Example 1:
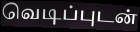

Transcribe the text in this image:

வெடிப்புடன்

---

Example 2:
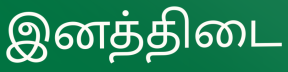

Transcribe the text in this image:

இனத்திடை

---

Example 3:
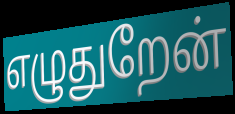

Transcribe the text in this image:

எழுதுறேன்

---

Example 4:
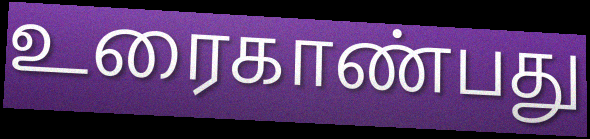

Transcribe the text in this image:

உரைகாண்பது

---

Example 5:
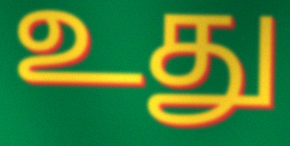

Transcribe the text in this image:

உது